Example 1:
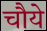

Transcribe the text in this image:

चौये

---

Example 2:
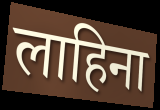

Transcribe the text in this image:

लाहिना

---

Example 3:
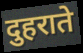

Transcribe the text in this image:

दुहराते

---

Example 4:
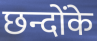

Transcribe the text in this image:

छन्दोंके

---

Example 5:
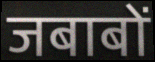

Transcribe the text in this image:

जबाबों